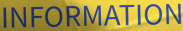
INFORMATION